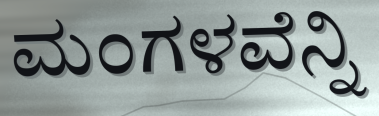
ಮಂಗಳವೆನ್ನಿ